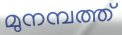
മുനമ്പത്ത്